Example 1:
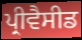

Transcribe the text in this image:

ਪ੍ਰੀਵੈਸੀਡ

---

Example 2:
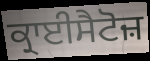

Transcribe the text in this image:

ਕ੍ਰਾਈਸੈਟੋਜ਼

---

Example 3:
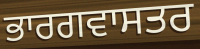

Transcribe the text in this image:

ਭਾਰਗਵਾਸਤਰ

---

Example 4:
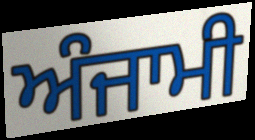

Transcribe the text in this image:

ਅੰਜਾਮੀ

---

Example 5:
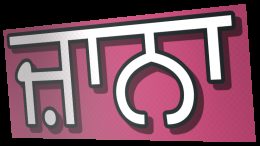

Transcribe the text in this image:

ਜ਼ਾਨਾ